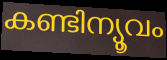
കണ്ടിന്യൂവം